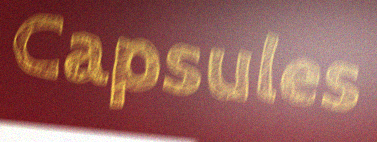
Capsules